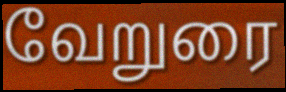
வேறுரை